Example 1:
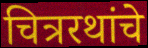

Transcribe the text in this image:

चित्ररथांचे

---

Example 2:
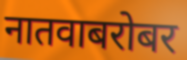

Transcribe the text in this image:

नातवाबरोबर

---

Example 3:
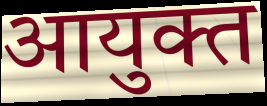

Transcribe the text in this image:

आयुक्‍त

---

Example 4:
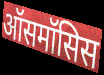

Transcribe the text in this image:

ऑसमॉसिस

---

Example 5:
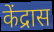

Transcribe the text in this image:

केंद्रास